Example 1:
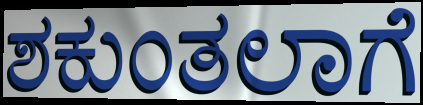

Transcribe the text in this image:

ಶಕುಂತಲಾಗೆ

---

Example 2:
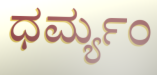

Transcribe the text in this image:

ಧರ್ಮ್ಯಂ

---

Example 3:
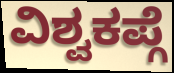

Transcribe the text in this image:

ವಿಶ್ವಕಪ್ಗೆ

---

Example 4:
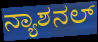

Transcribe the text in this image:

ನ್ಯಾಶನಲ್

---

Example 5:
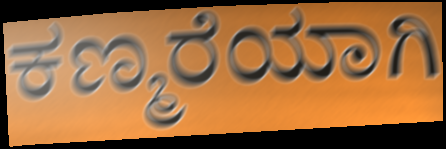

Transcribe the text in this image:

ಕಣ್ಮರೆಯಾಗಿ